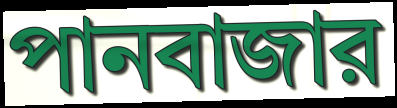
পানবাজার